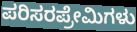
ಪರಿಸರಪ್ರೇಮಿಗಳು